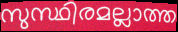
സുസ്ഥിരമല്ലാത്ത